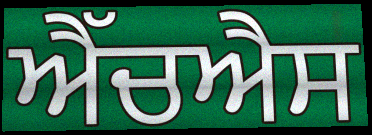
ਐੱਚਐਸ